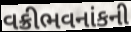
વક્રીભવનાંકની